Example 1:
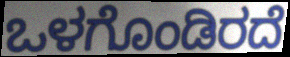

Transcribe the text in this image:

ಒಳಗೊಂಡಿರದೆ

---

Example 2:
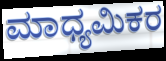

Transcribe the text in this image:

ಮಾಧ್ಯಮಿಕರ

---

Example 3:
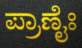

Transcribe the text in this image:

ಪ್ರಾಣೈಃ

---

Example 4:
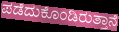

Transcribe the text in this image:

ಪಡೆದುಕೊಂಡಿರುತ್ತಾನೆ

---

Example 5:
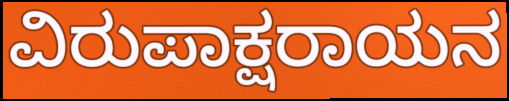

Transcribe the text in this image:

ವಿರುಪಾಕ್ಷರಾಯನ